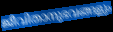
ജീവിതാനുഭവങ്ങളും